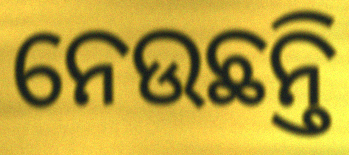
ନେଉଛନ୍ତି